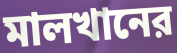
মালখানের